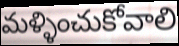
మళ్ళించుకోవాలి